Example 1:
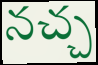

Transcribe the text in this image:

నచ్చ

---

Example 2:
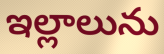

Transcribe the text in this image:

ఇల్లాలును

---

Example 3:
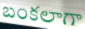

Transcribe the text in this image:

బంకలాగా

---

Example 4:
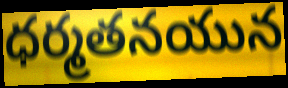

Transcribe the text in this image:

ధర్మతనయున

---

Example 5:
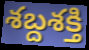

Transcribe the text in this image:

శబ్దశక్తి